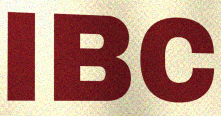
IBC